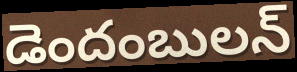
డెందంబులన్